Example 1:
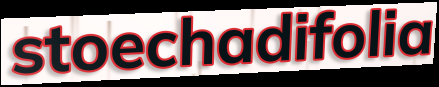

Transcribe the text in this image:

stoechadifolia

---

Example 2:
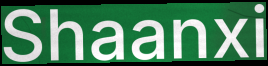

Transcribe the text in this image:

Shaanxi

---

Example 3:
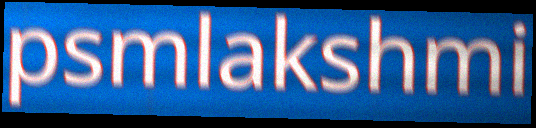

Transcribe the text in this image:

psmlakshmi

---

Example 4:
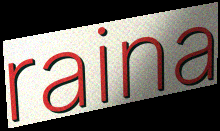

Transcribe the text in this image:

raina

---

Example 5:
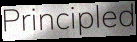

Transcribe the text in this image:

Principled